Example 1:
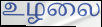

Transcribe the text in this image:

உழலை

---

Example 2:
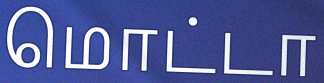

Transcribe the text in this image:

மொட்டா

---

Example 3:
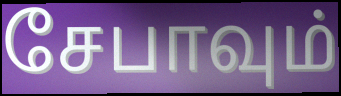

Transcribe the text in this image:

சேபாவும்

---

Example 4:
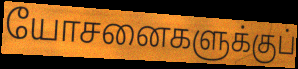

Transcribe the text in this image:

யோசனைகளுக்குப்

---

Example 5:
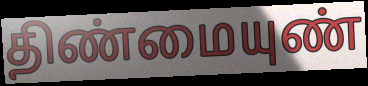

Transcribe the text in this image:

திண்மையுண்